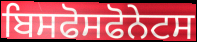
ਬਿਸਫੋਸਫੋਨੇਟਸ